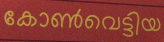
കോൺവെട്ടിയ